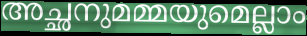
അച്ഛനുമമ്മയുമെല്ലാം